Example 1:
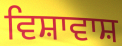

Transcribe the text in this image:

ਵਿਸ਼ਾਵਾਸ਼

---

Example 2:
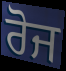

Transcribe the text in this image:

ਰੋਜ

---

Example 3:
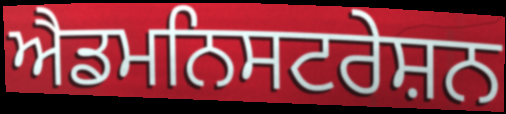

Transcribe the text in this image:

ਐਡਮਨਿਸਟਰੇਸ਼ਨ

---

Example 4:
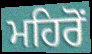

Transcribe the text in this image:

ਮਹਿਰੋਂ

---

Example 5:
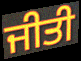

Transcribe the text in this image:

ਜੀਤੀ